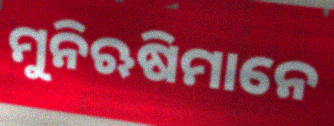
ମୁନିଋଷିମାନେ